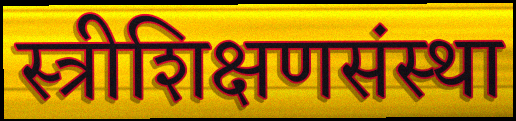
स्त्रीशिक्षणसंस्था